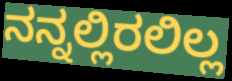
ನನ್ನಲ್ಲಿರಲಿಲ್ಲ